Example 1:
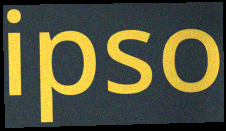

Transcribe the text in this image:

ipso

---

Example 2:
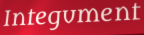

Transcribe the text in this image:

Integument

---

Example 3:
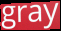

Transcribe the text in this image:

gray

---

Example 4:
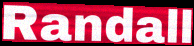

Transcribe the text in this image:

Randall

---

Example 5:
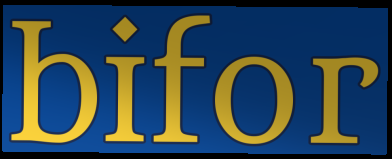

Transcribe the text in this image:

bifor